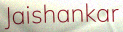
Jaishankar